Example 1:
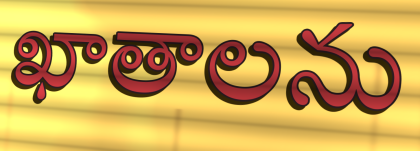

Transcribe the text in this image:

ఖాతాలను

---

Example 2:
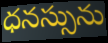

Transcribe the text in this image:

ధనస్సును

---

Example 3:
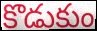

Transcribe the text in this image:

కొడుకుం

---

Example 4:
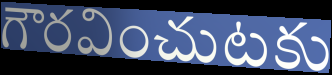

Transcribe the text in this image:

గౌరవించుటకు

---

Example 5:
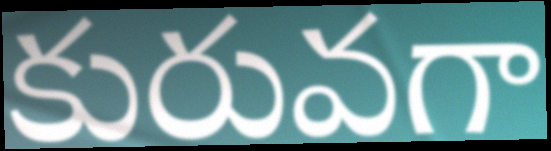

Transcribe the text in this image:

కురువగా